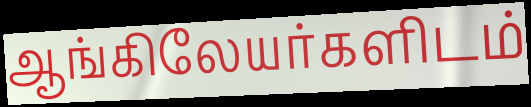
ஆங்கிலேயர்களிடம்